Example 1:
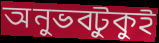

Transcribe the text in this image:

অনুভবটুকুই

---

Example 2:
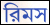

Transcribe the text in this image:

রিমস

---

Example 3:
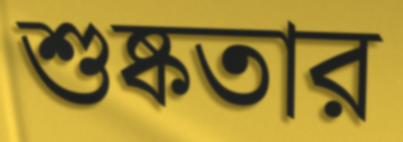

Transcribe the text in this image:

শুষ্কতার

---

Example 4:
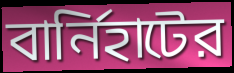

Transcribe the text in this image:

বার্নিহাটের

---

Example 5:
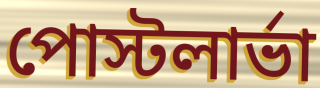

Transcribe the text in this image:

পোস্টলার্ভা